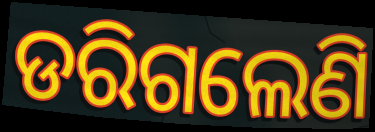
ଡରିଗଲେଣି